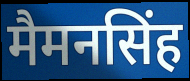
मैमनसिंह